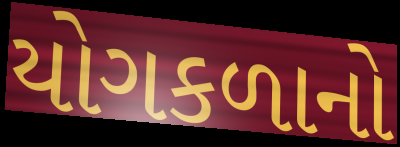
યોગકળાનો